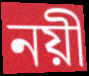
নয়ী